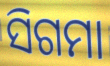
ସିଗମା